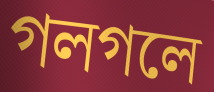
গলগলে